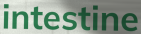
intestine